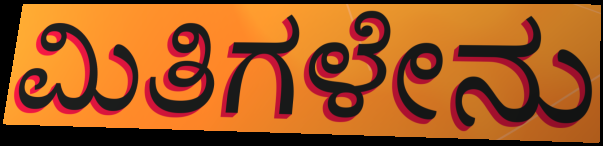
ಮಿತಿಗಳೇನು